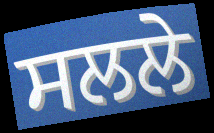
ਸਲਲੇ